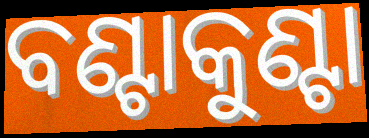
ବଣ୍ଟାକୁଣ୍ଟା